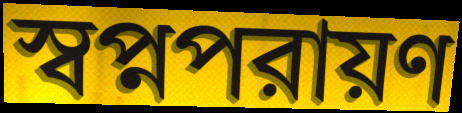
স্বপ্নপরায়ণ